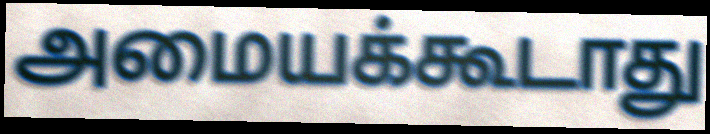
அமையக்கூடாது